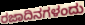
ರಜಾದಿನಗಳಂದು